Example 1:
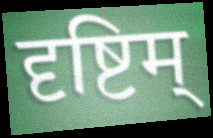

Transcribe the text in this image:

दृष्टिम्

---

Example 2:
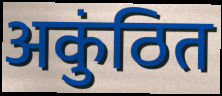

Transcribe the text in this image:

अकुंठित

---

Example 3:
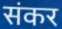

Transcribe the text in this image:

संकर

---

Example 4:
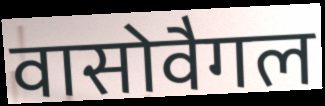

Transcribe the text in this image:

वासोवैगल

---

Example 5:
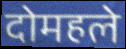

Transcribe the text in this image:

दोमहले